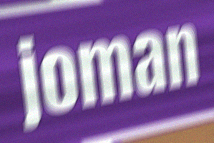
joman